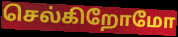
செல்கிறோமோ